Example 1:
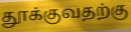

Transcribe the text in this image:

தூக்குவதற்கு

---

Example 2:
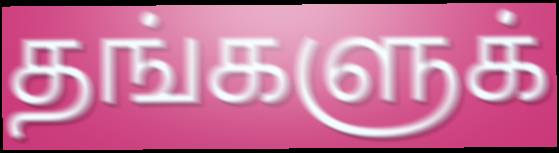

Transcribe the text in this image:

தங்களுக்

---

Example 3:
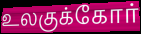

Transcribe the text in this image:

உலகுக்கோர்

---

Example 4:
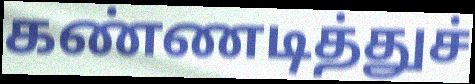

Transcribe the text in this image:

கண்ணடித்துச்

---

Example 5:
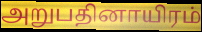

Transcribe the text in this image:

அறுபதினாயிரம்